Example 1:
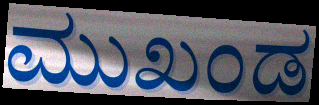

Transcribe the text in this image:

ಮುಖಂಡ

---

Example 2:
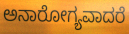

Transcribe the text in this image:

ಅನಾರೋಗ್ಯವಾದರೆ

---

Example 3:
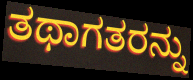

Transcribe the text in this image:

ತಥಾಗತರನ್ನು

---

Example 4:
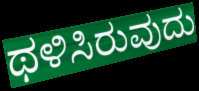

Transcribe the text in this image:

ಥಳಿಸಿರುವುದು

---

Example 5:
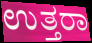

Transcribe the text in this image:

ಉತ್ತರಾ